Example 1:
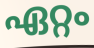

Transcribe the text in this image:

ഏറ്റം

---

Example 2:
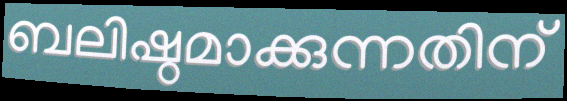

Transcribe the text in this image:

ബലിഷ്ഠമാക്കുന്നതിന്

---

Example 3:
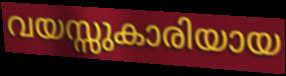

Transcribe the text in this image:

വയസ്സുകാരിയായ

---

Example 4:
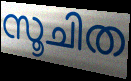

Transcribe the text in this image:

സൂചിത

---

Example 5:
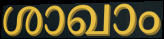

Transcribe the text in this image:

ശാഖാം